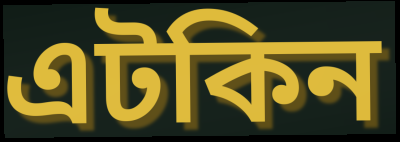
এটকিন